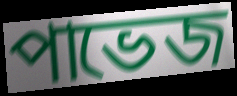
পাভেজ